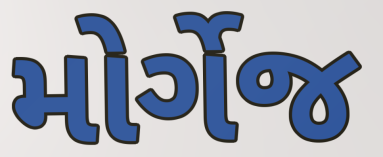
મોર્ગેજ